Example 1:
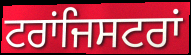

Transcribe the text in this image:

ਟਰਾਂਜਿਸਟਰਾਂ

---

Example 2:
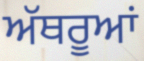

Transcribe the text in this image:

ਅੱਥਰੂਆਂ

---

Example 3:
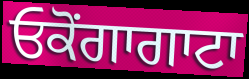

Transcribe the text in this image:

ਓਕੋਂਗਾਗਾਟਾ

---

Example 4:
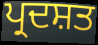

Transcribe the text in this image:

ਪ੍ਰਦਸ਼ਤ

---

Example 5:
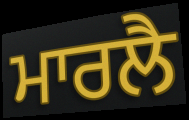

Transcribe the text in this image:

ਮਾਰਲੈ